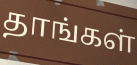
தாங்கள்